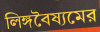
লিঙ্গবৈষ্যমের